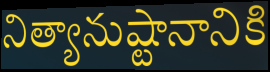
నిత్యానుష్టానానికి